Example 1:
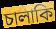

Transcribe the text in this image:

চালাকি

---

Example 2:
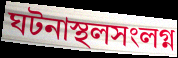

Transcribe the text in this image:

ঘটনাস্থলসংলগ্ন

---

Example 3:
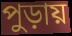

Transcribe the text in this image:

পুড়ায়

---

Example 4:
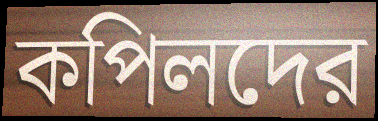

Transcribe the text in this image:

কপিলদের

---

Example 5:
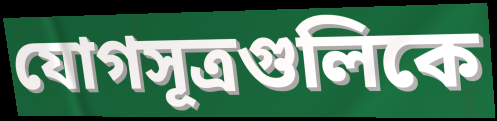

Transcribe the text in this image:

যোগসূত্রগুলিকে